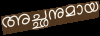
അച്ഛനുമായ